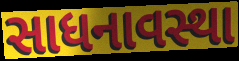
સાધનાવસ્થા